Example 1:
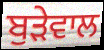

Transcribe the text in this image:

ਬੁੜੇਵਾਲ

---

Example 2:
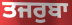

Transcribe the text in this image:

ਤਜਰੁਬਾ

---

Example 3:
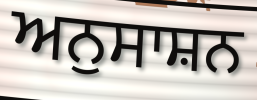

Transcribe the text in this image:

ਅਨੁਸਾਸ਼ਨ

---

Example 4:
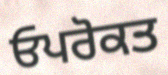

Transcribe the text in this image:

ਓਪਰੋਕਤ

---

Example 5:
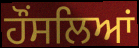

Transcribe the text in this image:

ਹੌਂਸਲਿਆਂ